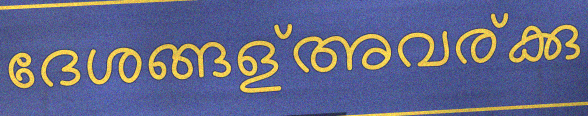
ദേശങ്ങള്അവര്ക്കു